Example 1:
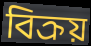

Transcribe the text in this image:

বিক্রয়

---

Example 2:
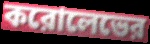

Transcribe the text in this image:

করোলেভের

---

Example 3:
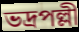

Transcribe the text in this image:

ভদ্রপল্লী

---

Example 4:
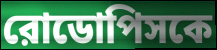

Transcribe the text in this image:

রোডোপিসকে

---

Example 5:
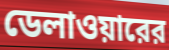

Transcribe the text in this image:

ডেলাওয়ারের